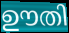
ഊതി